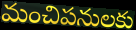
మంచిపనులకు